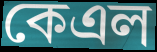
কেএল